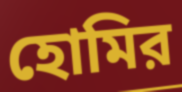
হোমির